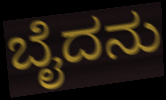
ಬೈದನು